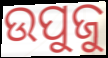
ଉପୁଜୁ